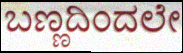
ಬಣ್ಣದಿಂದಲೇ